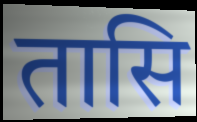
तासि